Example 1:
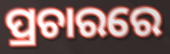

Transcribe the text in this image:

ପ୍ରଚାରରେ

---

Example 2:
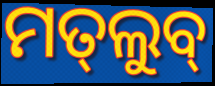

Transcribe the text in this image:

ମତ୍‌ଲୁବ୍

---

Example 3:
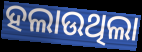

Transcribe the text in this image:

ହଲାଉଥିଲା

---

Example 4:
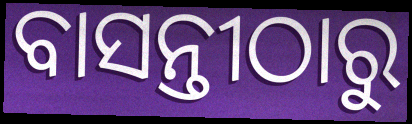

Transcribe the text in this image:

ବାସନ୍ତୀଠାରୁ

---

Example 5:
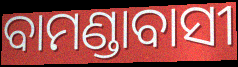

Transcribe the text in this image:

ବାମଣ୍ଡାବାସୀ